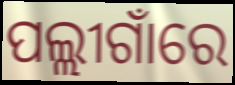
ପଲ୍ଲୀଗାଁରେ